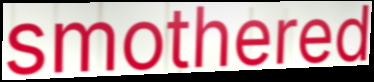
smothered